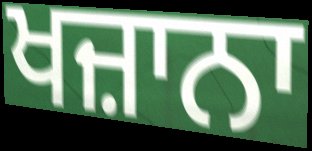
ਖਜ਼ਾਨਾ